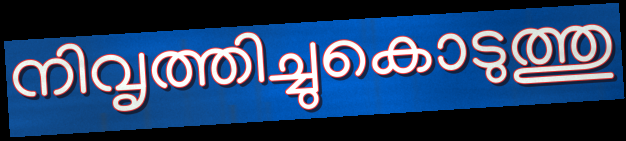
നിവൃത്തിച്ചുകൊടുത്തു